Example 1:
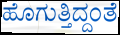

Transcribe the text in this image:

ಹೊಗುತ್ತಿದ್ದಂತೆ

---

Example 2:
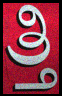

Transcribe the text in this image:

ತ್ತಿ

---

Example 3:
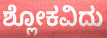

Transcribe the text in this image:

ಶ್ಲೋಕವಿದು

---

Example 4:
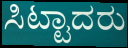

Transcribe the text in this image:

ಸಿಟ್ಟಾದರು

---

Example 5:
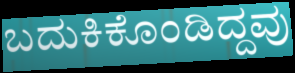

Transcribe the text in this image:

ಬದುಕಿಕೊಂಡಿದ್ದವು